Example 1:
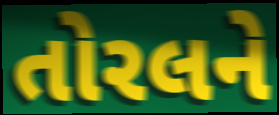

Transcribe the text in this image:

તોરલને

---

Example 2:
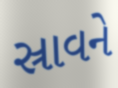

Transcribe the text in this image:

સ્રાવને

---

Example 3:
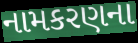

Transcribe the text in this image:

નામકરણના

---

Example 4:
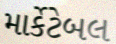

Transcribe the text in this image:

માર્કેટેબલ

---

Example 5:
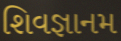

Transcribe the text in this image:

શિવજ્ઞાનમ